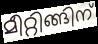
മീറ്റിങ്ങിന്